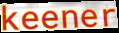
keener